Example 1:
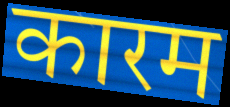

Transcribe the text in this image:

कारम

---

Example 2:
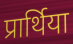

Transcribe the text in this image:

प्रार्थिया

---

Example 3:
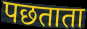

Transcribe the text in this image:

पछताता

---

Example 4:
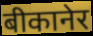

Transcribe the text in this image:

बीकानेर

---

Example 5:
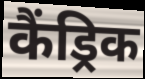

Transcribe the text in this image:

कैंड्रिक